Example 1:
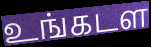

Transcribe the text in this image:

உங்கடள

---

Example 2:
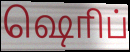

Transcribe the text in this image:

ஷெரிப்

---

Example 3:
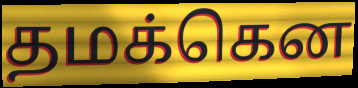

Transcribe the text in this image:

தமக்கென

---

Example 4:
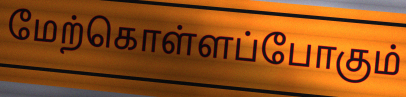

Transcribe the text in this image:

மேற்கொள்ளப்போகும்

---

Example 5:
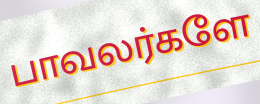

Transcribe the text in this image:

பாவலர்களே